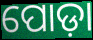
ପୋଡ଼ା